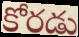
కోరడు